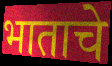
भाताचे